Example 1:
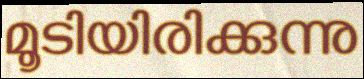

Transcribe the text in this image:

മൂടിയിരിക്കുന്നു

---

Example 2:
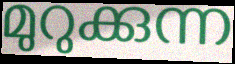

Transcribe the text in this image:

മുറുക്കുന്ന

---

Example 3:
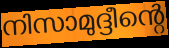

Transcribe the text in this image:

നിസാമുദ്ദീന്റെ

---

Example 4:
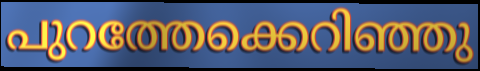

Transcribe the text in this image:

പുറത്തേക്കെറിഞ്ഞു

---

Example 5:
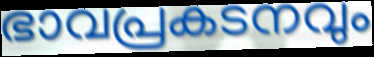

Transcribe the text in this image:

ഭാവപ്രകടനവും